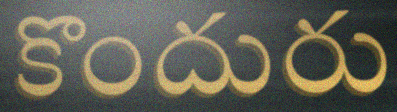
కొందురు